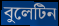
বুলেটিন